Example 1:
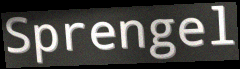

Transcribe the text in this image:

Sprengel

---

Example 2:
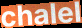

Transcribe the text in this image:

chalel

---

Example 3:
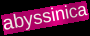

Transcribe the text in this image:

abyssinica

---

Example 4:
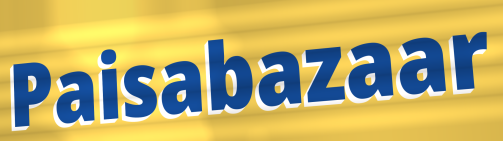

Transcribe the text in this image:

Paisabazaar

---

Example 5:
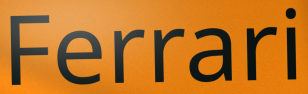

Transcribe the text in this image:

Ferrari